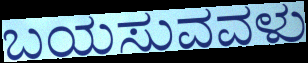
ಬಯಸುವವಳು